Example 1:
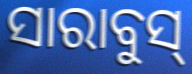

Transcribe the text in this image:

ସାରାବୁସ୍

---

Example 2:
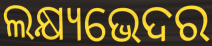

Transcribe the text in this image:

ଲକ୍ଷ୍ୟଭେଦର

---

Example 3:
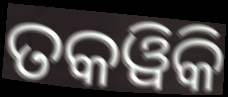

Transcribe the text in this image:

ତକୱିକି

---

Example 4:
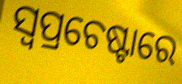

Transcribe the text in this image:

ସ୍ଵପ୍ରଚେଷ୍ଟାରେ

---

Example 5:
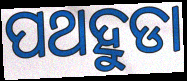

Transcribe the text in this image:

ପଥହୁଡା